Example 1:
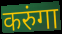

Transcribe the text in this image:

करुंगा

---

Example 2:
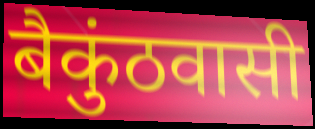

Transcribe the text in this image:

बैकुंठवासी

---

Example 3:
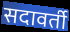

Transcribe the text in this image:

सदावर्ती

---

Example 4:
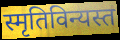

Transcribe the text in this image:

स्मृतिविन्यस्त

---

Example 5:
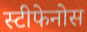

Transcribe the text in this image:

स्टीफेनोस